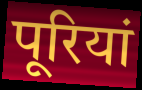
पूरियां